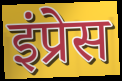
इंप्रेस